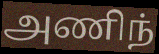
அணிந்